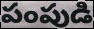
పంపుడి